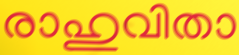
രാഹുവിതാ